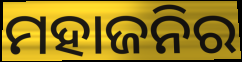
ମହାଜନିର